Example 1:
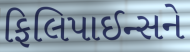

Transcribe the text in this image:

ફિલિપાઈન્સને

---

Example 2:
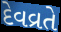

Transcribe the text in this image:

દેવવ્રતે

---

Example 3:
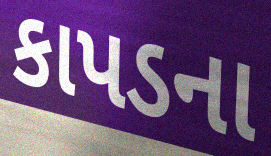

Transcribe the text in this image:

કાપડના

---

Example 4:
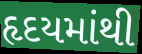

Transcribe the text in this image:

હૃદયમાંથી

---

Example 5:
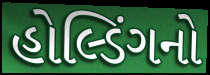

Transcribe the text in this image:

હોલ્ડિંગનો